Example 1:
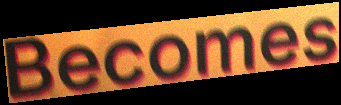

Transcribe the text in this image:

Becomes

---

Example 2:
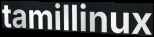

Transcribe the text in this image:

tamillinux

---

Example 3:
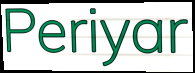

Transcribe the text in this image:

Periyar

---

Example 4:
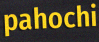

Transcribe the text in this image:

pahochi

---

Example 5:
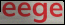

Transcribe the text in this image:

eege